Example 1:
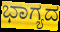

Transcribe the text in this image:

ಭಾಗ್ಯದ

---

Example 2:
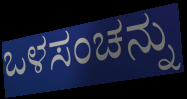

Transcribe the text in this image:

ಒಳಸಂಚನ್ನು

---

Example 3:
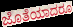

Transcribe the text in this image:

ಜೊತೆಯಾದರೂ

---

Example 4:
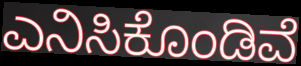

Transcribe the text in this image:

ಎನಿಸಿಕೊಂಡಿವೆ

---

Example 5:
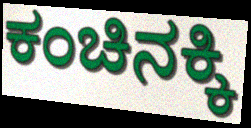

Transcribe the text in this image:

ಕಂಚಿನಕ್ಕಿ